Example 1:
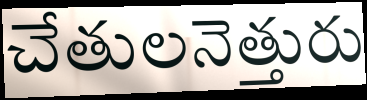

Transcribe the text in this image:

చేతులనెత్తురు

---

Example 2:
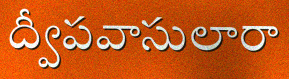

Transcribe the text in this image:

ద్వీపవాసులారా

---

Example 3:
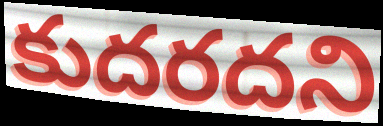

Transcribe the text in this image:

కుదరదని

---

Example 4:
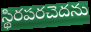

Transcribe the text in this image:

స్థిరపరచెదను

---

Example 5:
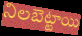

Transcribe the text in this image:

నిలబెట్టాయి